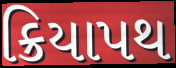
ક્રિયાપથ